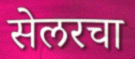
सेलरचा